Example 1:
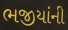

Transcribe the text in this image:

ભજીયાંની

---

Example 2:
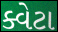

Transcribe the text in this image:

ક્વેટા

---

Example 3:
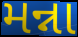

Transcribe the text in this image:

મન્ના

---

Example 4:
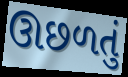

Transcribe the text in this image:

ઊછળતું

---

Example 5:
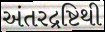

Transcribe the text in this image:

અંતરદ્રષ્ટિથી